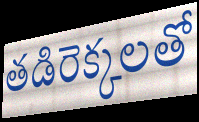
తడిరెక్కలతో